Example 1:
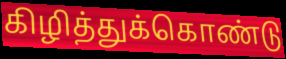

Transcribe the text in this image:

கிழித்துக்கொண்டு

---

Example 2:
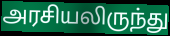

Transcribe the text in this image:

அரசியலிருந்து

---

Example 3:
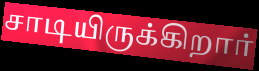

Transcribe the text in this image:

சாடியிருக்கிறார்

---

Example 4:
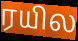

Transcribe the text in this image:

ரயில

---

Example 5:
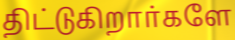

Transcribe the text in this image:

திட்டுகிறார்களே